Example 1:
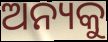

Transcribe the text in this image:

ଅନ୍ୟକୁ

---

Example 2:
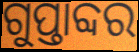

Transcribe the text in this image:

ଗୁପ୍ତାବ୍ଦର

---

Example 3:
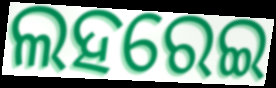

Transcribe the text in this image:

ଲହରେଇ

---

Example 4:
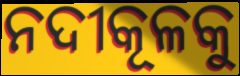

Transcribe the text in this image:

ନଦୀକୂଳକୁ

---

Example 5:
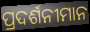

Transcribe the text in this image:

ପ୍ରଦର୍ଶନୀମାନ